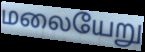
மலையேறு